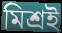
মিশ্ৰই